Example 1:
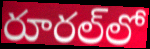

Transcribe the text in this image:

రూరల్‌లో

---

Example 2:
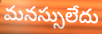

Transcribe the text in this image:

మనస్సులేదు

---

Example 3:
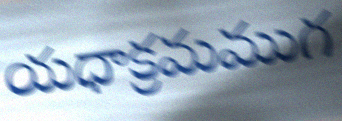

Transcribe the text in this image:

యధాక్రమముగ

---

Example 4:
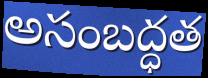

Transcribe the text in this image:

అసంబద్ధత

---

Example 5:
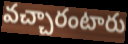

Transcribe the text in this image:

వచ్చారంటారు